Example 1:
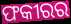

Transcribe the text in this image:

ଫକୀରର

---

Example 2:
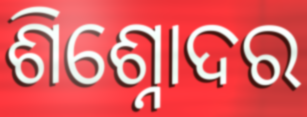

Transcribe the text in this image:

ଶିଶ୍ନୋଦର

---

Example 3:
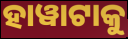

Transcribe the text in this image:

ହାୱାଟାକୁ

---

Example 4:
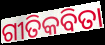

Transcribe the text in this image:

ଗୀତିକବିତା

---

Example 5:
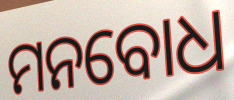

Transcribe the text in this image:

ମନବୋଧ